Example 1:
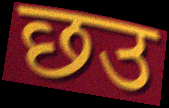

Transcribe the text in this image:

छउ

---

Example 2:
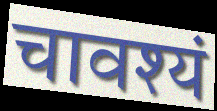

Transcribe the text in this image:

चावश्यं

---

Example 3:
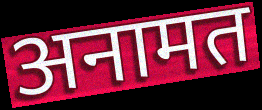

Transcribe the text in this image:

अनामत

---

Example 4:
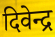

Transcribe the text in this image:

दिवेन्द्र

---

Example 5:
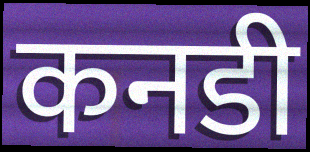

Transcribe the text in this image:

कनडी